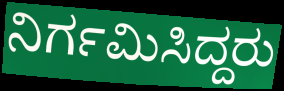
ನಿರ್ಗಮಿಸಿದ್ದರು